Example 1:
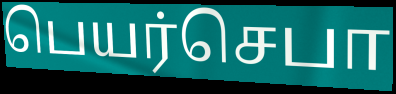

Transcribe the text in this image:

பெயர்செபா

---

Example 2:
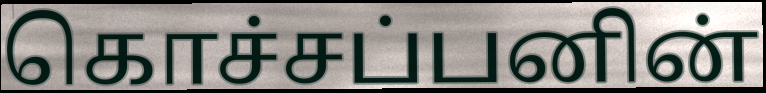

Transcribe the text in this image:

கொச்சப்பனின்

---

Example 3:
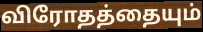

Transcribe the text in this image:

விரோதத்தையும்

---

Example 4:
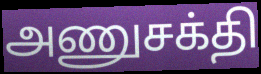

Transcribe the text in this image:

அணுசக்தி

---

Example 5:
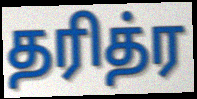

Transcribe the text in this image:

தரித்ர